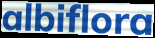
albiflora